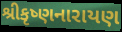
શ્રીકૃષ્ણનારાયણ